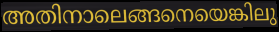
അതിനാലെങ്ങനെയെങ്കിലു